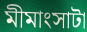
মীমাংসাটা